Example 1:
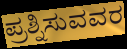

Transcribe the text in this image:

ಪ್ರಶ್ನಿಸುವವರ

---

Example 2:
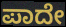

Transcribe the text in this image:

ಪಾದೇ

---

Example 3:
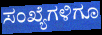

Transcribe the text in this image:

ಸಂಖ್ಯೆಗಳಿಗೂ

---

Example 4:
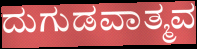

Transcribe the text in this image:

ದುಗುಡವಾತ್ಮವ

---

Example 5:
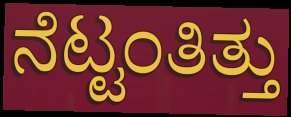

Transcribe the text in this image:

ನೆಟ್ಟಂತಿತ್ತು